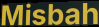
Misbah